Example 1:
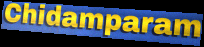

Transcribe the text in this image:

Chidamparam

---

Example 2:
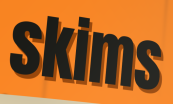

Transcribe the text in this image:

skims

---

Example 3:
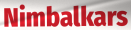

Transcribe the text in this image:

Nimbalkars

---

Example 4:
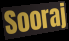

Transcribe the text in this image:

Sooraj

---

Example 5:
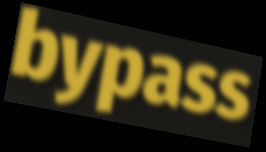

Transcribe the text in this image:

bypass